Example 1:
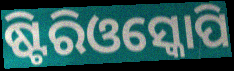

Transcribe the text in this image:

ଷ୍ଟିରିଓସ୍କୋପି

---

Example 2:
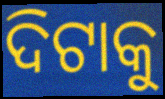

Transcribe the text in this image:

ଦିଟାକୁ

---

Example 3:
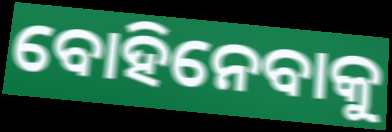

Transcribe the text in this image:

ବୋହିନେବାକୁ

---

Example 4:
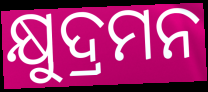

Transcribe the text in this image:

କ୍ଷୁଦ୍ରମନ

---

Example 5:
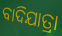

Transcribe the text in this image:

ବାଦିଯାତ୍ରା